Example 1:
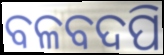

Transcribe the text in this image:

ବଳବଦପି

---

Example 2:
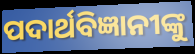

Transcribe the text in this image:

ପଦାର୍ଥବିଜ୍ଞାନୀଙ୍କୁ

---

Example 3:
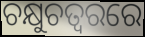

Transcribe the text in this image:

ଚକ୍ଷୁଚତ୍ୱରରେ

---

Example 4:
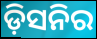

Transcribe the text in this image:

ଡ଼ିସନିର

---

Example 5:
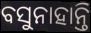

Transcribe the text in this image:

ବସୁନାହାନ୍ତି